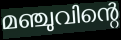
മഞ്ചുവിന്റെ